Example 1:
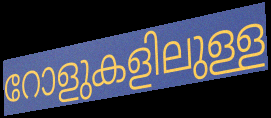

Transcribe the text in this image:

റോളുകളിലുള്ള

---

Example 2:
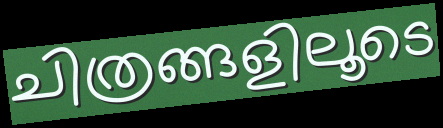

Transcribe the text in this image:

ചിത്രങ്ങളിലൂടെ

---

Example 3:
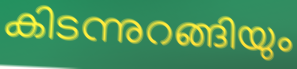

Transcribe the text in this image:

കിടന്നുറങ്ങിയും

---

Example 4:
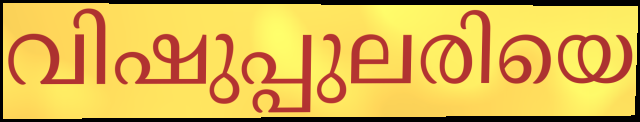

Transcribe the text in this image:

വിഷുപ്പുലരിയെ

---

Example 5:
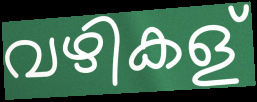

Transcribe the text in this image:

വഴികള്